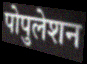
पोपुलेशन